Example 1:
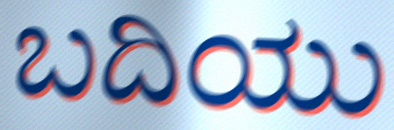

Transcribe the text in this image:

ಬದಿಯು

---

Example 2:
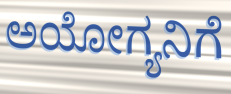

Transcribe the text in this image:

ಅಯೋಗ್ಯನಿಗೆ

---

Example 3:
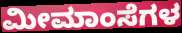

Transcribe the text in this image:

ಮೀಮಾಂಸೆಗಳ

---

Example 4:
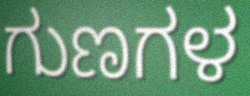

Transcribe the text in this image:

ಗುಣಗಳ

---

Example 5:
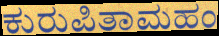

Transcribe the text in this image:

ಕುರುಪಿತಾಮಹಂ